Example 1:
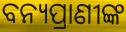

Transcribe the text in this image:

ବନ୍ୟପ୍ରାଣୀଙ୍କ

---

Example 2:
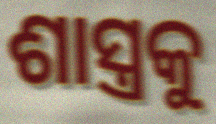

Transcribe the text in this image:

ଶାସ୍ତ୍ରକୁ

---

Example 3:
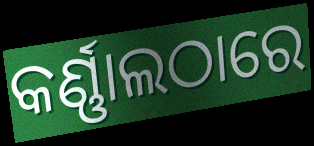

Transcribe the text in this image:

କର୍ଣ୍ଣାଲଠାରେ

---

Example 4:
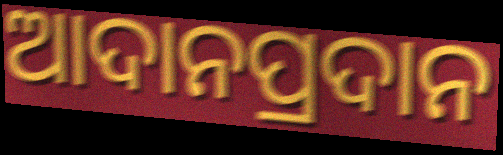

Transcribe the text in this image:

ଆଦାନପ୍ରଦାନ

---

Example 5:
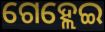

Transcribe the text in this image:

ଗେହ୍ଲେଇ